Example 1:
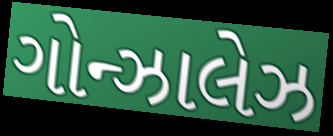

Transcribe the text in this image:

ગોન્ઝાલેઝ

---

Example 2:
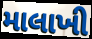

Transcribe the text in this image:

માલાખી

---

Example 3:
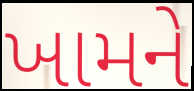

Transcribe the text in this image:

ખામને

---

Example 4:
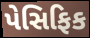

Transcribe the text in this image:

પેસિફિક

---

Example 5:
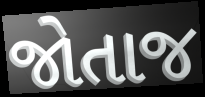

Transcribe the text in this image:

જોતાજ